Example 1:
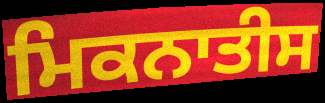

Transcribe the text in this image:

ਮਿਕਨਾਤੀਸ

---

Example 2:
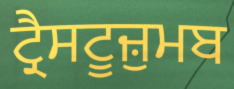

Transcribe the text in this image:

ਟ੍ਰੈਸਟੂਜ਼ੁਮਬ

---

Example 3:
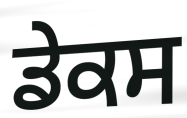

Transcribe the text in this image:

ਡੇਕਸ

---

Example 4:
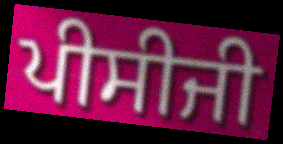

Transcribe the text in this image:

ਪੀਸੀਜੀ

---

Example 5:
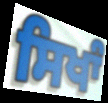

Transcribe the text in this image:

ਸਿਖਾੰ